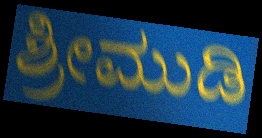
ಶ್ರೀಮುಡಿ